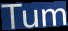
Tum